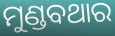
ମୁଣ୍ଡବଥାର